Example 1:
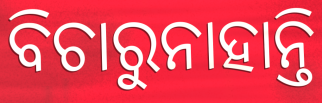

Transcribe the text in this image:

ବିଚାରୁନାହାନ୍ତି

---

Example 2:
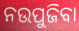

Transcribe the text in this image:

ନଉପୁଜିବା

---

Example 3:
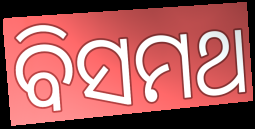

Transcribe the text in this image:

ବିସମଥ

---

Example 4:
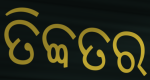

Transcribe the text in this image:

ତିବ୍ବତର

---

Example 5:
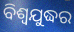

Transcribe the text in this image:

ବିଶ୍ୱଯୁଦ୍ଧର